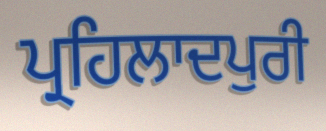
ਪ੍ਰਹਿਲਾਦਪੁਰੀ